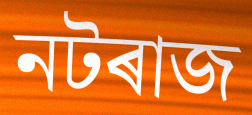
নটৰাজ